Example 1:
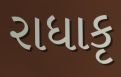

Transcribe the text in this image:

રાધાકૃ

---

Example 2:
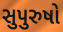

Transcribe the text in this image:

સુપુરુષો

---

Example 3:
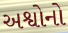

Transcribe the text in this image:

અશ્વોનો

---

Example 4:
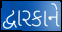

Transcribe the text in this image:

દ્વારકાને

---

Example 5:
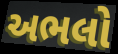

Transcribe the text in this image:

અભલો